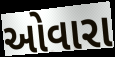
ઓવારા